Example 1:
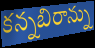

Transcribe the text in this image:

కన్నబిరాన్ను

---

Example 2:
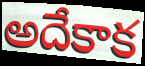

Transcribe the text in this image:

అదేకాక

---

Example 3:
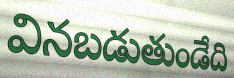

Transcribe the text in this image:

వినబడుతుండేది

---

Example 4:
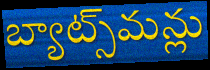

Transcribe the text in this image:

బ్యాట్స్‌మన్లు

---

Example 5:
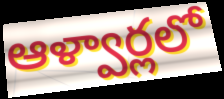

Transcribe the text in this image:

ఆళ్వార్లలో